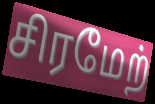
சிரமேற்